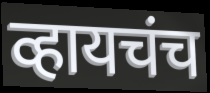
व्हायचंच